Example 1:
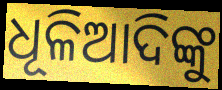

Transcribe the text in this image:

ଧୂଳିଆଦିଙ୍କୁ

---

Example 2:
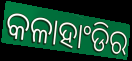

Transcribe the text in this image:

କଳାହାଂଡିର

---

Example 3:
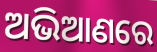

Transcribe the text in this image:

ଅଭିଆଣରେ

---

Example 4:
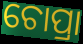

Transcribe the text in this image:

ଚୋପ୍ରା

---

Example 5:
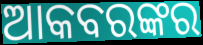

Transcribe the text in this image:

ଆକବରଙ୍କର